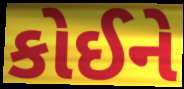
કોઈને